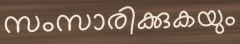
സംസാരിക്കുകയും